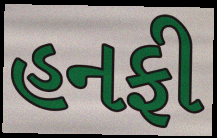
હનફી